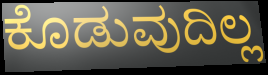
ಕೊಡುವುದಿಲ್ಲ